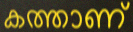
കത്താണ്